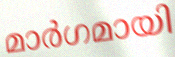
മാർഗമായി